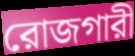
রোজগারী